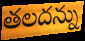
తలదన్ను